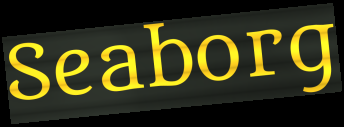
Seaborg